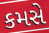
કમસે